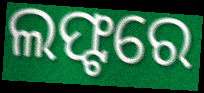
ଲଫ୍ଟରେ